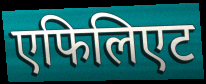
एफिलिएट